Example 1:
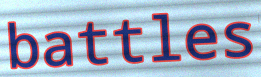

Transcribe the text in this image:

battles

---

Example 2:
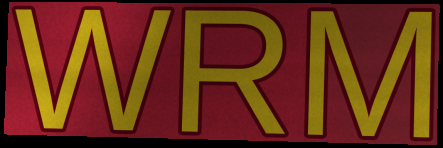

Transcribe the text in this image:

WRM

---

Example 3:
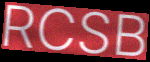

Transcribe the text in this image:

RCSB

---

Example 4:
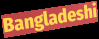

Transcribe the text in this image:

Bangladeshi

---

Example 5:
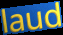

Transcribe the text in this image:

laud